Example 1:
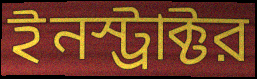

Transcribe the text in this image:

ইনস্ট্রাক্টর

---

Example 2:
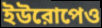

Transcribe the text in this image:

ইউরোপেও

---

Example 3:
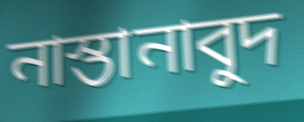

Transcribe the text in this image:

নাস্তানাবুদ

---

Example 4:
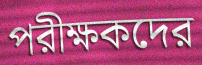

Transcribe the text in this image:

পরীক্ষকদের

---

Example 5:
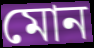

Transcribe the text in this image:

মোন